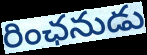
రింఛనుడు